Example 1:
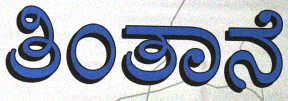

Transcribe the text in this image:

ತಿಂತಾನೆ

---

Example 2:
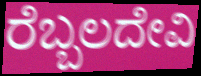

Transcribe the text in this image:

ರೆಬ್ಬಲದೇವಿ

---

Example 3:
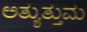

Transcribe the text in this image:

ಅತ್ಯುತ್ತುಮ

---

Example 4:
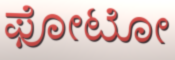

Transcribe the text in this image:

ಫೋಟೋ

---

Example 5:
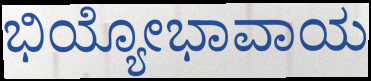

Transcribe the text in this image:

ಭಿಯ್ಯೋಭಾವಾಯ